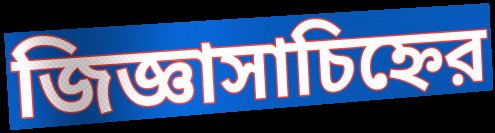
জিজ্ঞাসাচিহ্নের